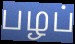
பழப்